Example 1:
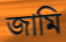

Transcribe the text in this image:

জামি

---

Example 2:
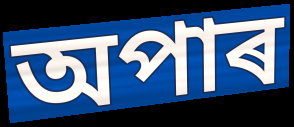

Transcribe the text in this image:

অপাৰ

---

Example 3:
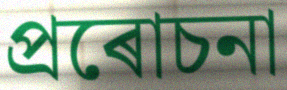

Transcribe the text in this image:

প্ৰৰোচনা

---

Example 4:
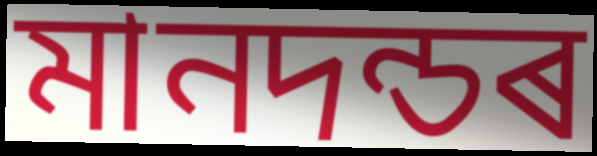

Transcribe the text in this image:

মানদন্ডৰ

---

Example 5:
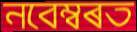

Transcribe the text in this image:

নবেম্বৰত